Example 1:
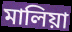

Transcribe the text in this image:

মালিয়া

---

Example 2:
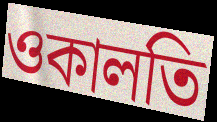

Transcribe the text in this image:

ওকালতি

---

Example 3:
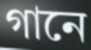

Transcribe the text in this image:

গানে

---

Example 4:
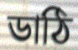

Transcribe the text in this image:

ডাঠি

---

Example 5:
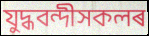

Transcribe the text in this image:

যুদ্ধবন্দীসকলৰ